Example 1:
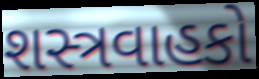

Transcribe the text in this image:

શસ્ત્રવાહકો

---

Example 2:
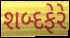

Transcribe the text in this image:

શબ્દફેરે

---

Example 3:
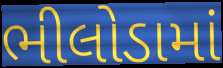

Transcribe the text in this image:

ભીલોડામાં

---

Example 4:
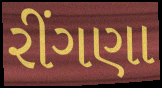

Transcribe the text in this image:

રીંગણા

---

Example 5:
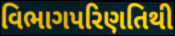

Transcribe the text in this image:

વિભાગપરિણતિથી